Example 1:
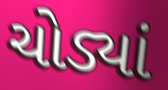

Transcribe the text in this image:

ચોડ્યાં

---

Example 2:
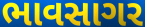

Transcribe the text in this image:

ભાવસાગર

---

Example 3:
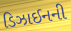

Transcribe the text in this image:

ડિઝાઈનની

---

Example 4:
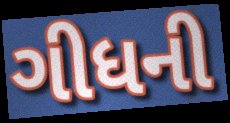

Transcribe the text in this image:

ગીધની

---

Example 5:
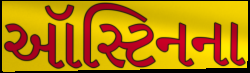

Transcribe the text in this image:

ઑસ્ટિનના